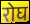
रोघ